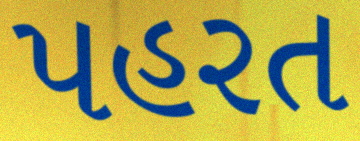
પહરત